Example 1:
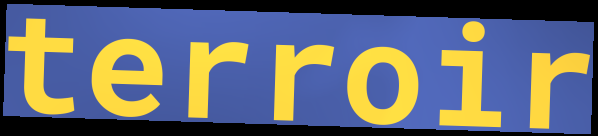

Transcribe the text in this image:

terroir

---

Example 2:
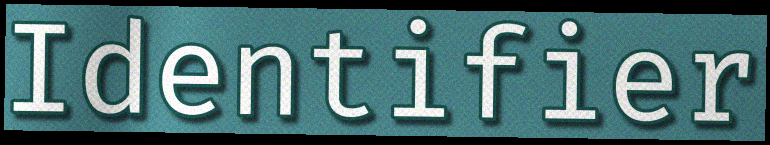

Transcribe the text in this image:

Identifier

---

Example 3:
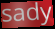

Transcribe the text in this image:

sady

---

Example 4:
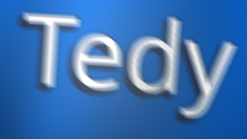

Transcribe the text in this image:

Tedy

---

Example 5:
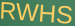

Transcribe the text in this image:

RWHS